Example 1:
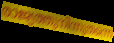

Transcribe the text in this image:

രാജ്യത്തുനിന്നുതന്നെ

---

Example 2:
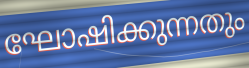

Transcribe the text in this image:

ഘോഷിക്കുന്നതും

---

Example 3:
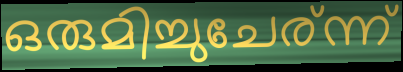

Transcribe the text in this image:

ഒരുമിച്ചുചേര്ന്ന്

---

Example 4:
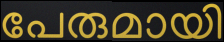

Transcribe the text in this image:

പേരുമായി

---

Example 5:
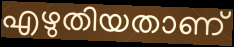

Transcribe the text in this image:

എഴുതിയതാണ്